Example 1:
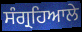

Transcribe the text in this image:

ਸੰਗ੍ਰਹਿਆਲੇ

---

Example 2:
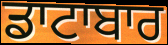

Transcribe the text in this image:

ਡਾਟਾਬਾਰ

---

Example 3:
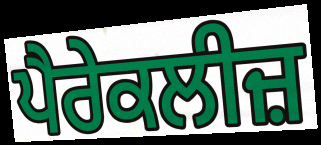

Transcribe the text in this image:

ਪੈਰੇਕਲੀਜ਼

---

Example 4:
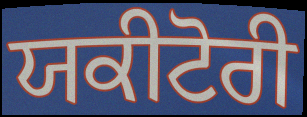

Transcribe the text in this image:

ਯਕੀਟੋਰੀ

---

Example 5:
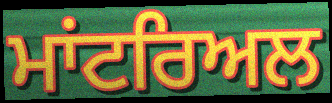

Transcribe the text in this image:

ਮਾਂਟਰਿਅਲ